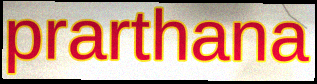
prarthana